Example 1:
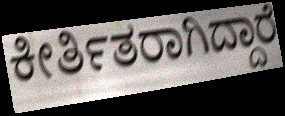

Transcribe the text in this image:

ಕೀರ್ತಿತರಾಗಿದ್ದಾರೆ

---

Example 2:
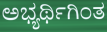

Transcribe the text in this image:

ಅಭ್ಯರ್ಥಿಗಿಂತ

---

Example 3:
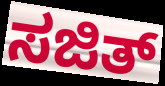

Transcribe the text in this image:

ಸಜಿತ್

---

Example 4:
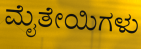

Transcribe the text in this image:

ಮೈತೇಯಿಗಳು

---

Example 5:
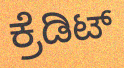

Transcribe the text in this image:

ಕ್ರೆಡಿಟ್